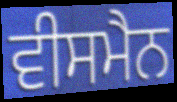
ਵੀਸਮੈਨ